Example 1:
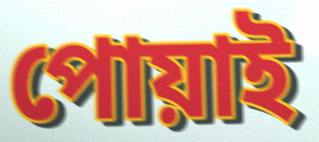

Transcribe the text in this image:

পোয়াই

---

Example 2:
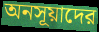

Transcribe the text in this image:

অনসূয়াদের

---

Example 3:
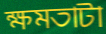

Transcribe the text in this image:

ক্ষমতাটা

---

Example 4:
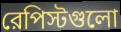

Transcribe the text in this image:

রেপিস্টগুলো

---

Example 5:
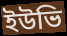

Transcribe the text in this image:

ইউভি